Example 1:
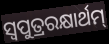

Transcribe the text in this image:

ସ୍ଵପୁତ୍ରରକ୍ଷାର୍ଥମ୍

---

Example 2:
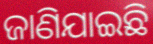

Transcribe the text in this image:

ଜାଣିଯାଇଛି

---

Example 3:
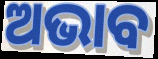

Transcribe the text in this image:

ଅଭାବ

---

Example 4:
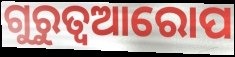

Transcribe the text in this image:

ଗୁରୁତ୍ଵଆରୋପ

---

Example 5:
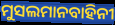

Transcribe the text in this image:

ମୁସଲମାନବାହିନୀ